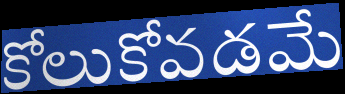
కోలుకోవడమే